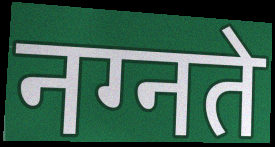
नग्नते